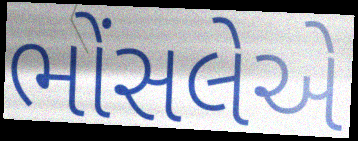
ભોંસલેએ